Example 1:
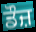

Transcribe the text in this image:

ਡੌਜ਼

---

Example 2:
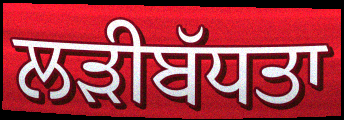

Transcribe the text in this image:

ਲੜੀਬੱਧਤਾ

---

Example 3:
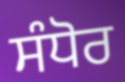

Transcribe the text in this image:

ਸੰਧੋਰ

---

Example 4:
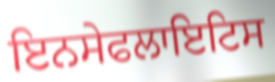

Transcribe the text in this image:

ਇਨਸੇਫਲਾਇਟਿਸ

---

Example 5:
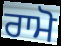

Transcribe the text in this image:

ਰਾਮੋ